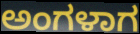
ಅಂಗಳಾಗ